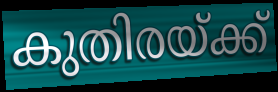
കുതിരയ്ക്ക്